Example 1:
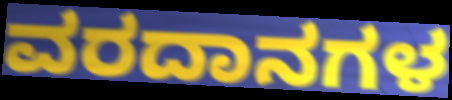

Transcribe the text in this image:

ವರದಾನಗಳ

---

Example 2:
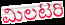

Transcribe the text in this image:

ಮಿಲಟರಿ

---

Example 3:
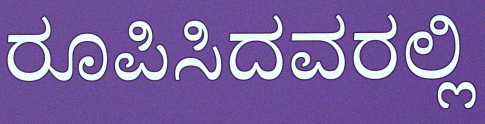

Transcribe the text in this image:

ರೂಪಿಸಿದವರಲ್ಲಿ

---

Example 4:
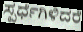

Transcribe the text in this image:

ಸ್ಪರ್ಧೆಗಿಳಿದರೆ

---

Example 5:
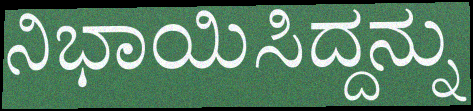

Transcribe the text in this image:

ನಿಭಾಯಿಸಿದ್ದನ್ನು